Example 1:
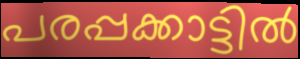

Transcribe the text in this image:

പരപ്പക്കാട്ടിൽ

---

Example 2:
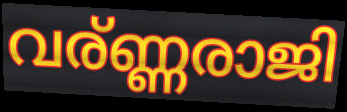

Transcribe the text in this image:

വര്ണ്ണരാജി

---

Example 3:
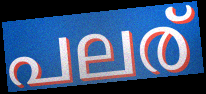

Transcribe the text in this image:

പലര്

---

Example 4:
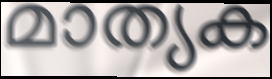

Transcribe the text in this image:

മാത്യക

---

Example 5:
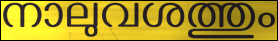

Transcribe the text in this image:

നാലുവശത്തും